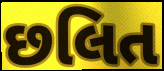
છલિત